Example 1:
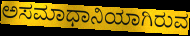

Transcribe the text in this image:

ಅಸಮಾಧಾನಿಯಾಗಿರುವ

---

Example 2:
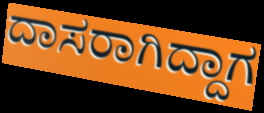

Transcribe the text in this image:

ದಾಸರಾಗಿದ್ದಾಗ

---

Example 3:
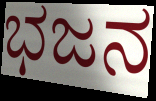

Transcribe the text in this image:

ಭಜನ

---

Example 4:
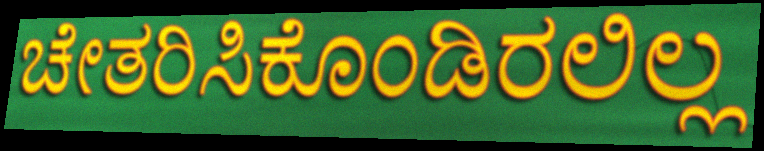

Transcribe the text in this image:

ಚೇತರಿಸಿಕೊಂಡಿರಲಿಲ್ಲ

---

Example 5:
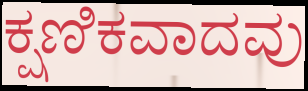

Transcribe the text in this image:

ಕ್ಷಣಿಕವಾದವು